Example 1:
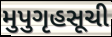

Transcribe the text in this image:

મુપુગૃહસૂચી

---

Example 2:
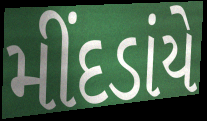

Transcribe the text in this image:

મીંદડાંયે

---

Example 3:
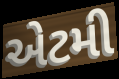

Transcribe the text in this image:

એટમી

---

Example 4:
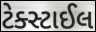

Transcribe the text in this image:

ટેક્સ્ટાઈલ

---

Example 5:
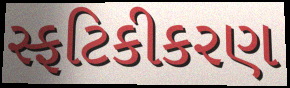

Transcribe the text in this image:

સ્ફટિકીકરણ